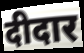
दीदार